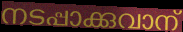
നടപ്പാക്കുവാന്